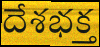
దేశభక్త